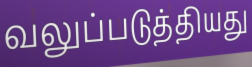
வலுப்படுத்தியது